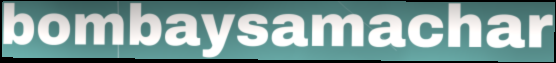
bombaysamachar